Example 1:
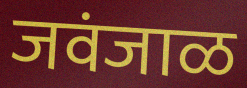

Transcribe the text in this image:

जवंजाळ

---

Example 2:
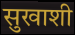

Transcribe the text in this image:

सुखाशी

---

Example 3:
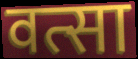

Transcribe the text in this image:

वत्सा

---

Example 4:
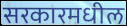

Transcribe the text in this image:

सरकारमधील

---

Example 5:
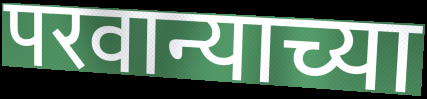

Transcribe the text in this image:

परवान्याच्या